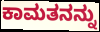
ಕಾಮತನನ್ನು